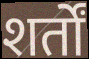
शर्तों